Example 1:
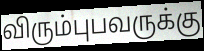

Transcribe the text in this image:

விரும்புபவருக்கு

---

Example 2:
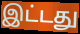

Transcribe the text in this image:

இட்டது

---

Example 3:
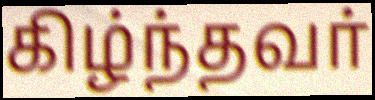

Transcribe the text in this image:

கிழ்ந்தவர்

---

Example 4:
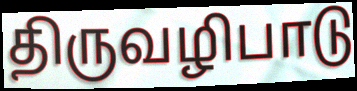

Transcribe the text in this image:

திருவழிபாடு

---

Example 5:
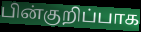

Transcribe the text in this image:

பின்குறிப்பாக